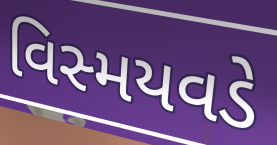
વિસ્મયવડે